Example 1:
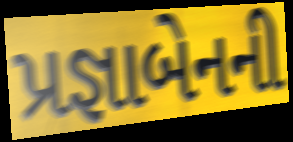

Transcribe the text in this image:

પ્રજ્ઞાબેનની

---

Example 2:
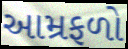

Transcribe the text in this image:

આમ્રફળો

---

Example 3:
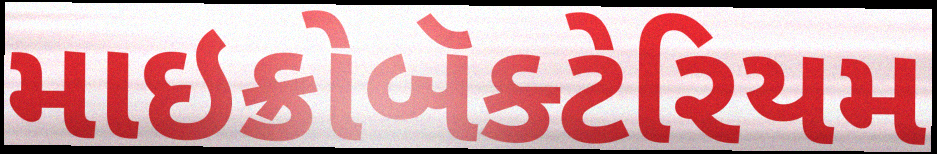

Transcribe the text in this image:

માઇક્રોબૅક્ટેરિયમ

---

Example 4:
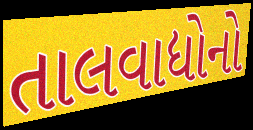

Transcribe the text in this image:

તાલવાદ્યોનો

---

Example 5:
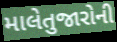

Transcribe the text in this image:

માલેતુજારોની